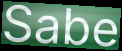
Sabe